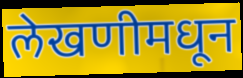
लेखणीमधून